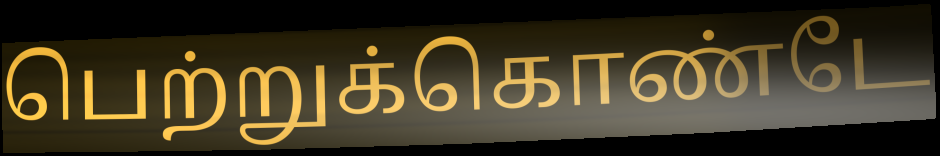
பெற்றுக்கொண்டே